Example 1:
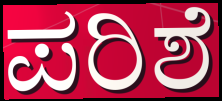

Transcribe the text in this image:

ಪರಿಶೆ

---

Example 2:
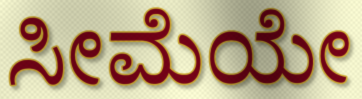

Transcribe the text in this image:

ಸೀಮೆಯೇ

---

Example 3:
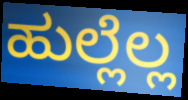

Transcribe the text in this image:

ಹುಲ್ಲೆಲ್ಲ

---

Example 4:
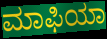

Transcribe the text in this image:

ಮಾಫಿಯಾ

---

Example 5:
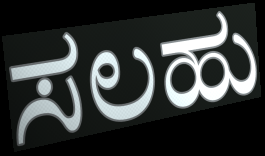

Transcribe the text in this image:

ಸಲಹು